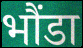
भौंडा